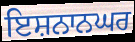
ਇਸ਼ਨਾਨਘਰ